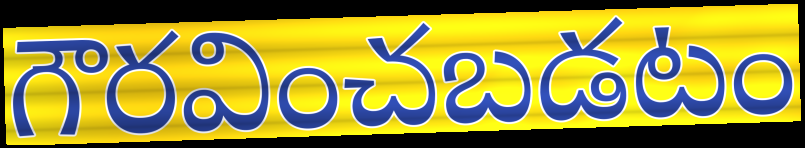
గౌరవించబడటం